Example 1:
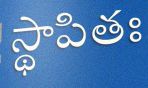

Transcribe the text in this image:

స్థాపితః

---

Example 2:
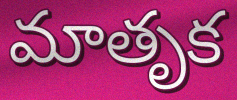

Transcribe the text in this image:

మాతృక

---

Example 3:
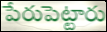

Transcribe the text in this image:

పేరుపెట్టారు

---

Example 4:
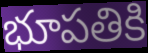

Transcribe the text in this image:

భూపతికి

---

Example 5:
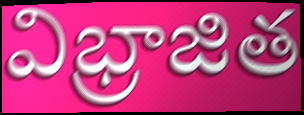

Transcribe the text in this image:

విభ్రాజిత